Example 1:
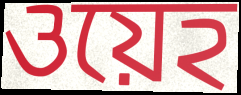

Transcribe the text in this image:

ওয়েহ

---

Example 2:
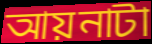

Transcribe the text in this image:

আয়নাটা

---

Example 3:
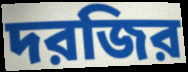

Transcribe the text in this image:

দরজির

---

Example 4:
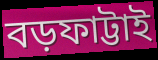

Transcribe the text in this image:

বড়ফাট্টাই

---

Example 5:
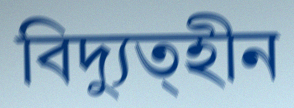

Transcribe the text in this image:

বিদ্যুত্হীন